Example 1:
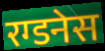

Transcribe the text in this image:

रग्डनेस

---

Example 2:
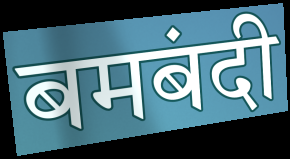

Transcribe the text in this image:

बमबंदी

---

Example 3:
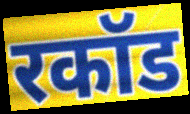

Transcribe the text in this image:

रकॉड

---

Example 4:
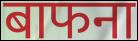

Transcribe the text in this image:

बाफना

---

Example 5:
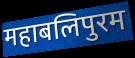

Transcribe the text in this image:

महाबलिपुरम